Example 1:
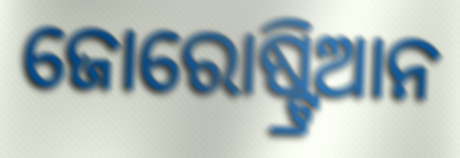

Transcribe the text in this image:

ଜୋରୋଷ୍ଟ୍ରିଆନ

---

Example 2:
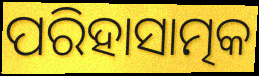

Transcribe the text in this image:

ପରିହାସାତ୍ମକ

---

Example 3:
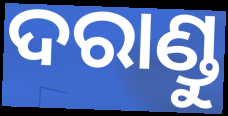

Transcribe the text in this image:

ଦରାଣ୍ଡୁ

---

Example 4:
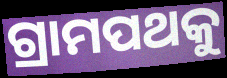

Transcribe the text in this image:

ଗ୍ରାମପଥକୁ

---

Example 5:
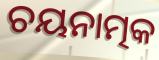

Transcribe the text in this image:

ଚୟନାତ୍ମକ